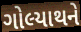
ગોલ્યાથને